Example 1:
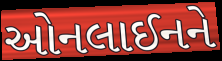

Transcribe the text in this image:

ઓનલાઈનને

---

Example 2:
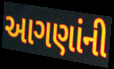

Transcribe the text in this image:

આગણાંની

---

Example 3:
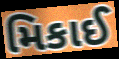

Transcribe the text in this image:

મિકાઈ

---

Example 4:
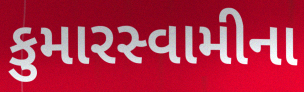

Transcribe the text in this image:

કુમારસ્વામીના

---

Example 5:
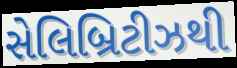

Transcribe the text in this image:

સેલિબ્રિટીઝથી